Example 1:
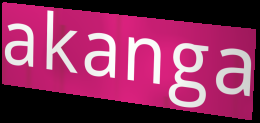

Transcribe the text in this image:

akanga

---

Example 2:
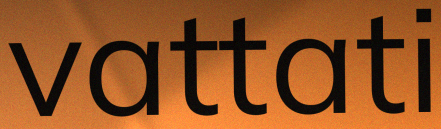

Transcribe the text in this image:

vattati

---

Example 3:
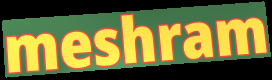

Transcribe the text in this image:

meshram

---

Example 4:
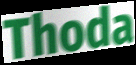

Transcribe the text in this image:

Thoda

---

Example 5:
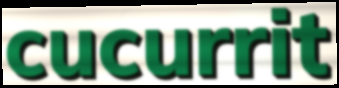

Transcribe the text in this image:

cucurrit